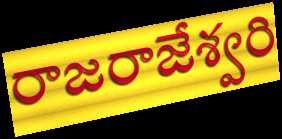
రాజరాజేశ్వరి